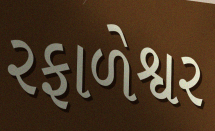
રફાળેશ્વર